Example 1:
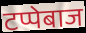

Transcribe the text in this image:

टप्पेबाज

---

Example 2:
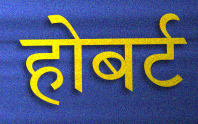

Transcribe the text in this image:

होबर्ट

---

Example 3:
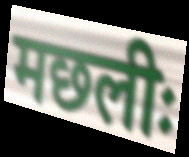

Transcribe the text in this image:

मछलीः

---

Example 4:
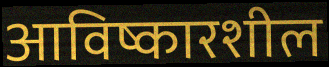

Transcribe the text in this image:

आविष्कारशील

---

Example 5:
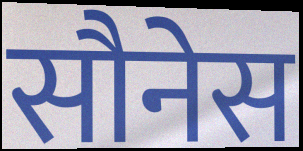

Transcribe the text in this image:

सौनेस